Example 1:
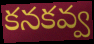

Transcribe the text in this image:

కనకవ్వ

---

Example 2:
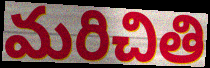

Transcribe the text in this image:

మరిచితి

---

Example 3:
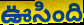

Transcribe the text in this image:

ఊసింది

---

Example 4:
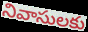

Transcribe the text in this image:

నివాసులకు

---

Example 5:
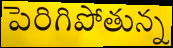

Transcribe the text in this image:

పెరిగిపోతున్న